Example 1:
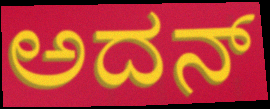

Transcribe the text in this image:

ಅದನ್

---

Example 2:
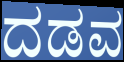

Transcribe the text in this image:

ದಡವ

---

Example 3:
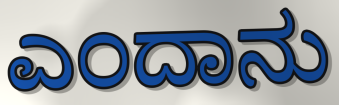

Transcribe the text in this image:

ಎಂದಾನು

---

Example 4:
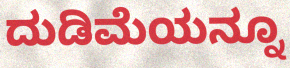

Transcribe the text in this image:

ದುಡಿಮೆಯನ್ನೂ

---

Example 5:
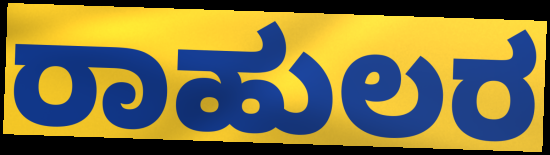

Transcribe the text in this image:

ರಾಹುಲರ